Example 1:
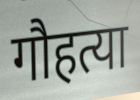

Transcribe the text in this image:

गौहत्या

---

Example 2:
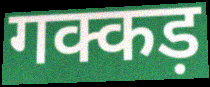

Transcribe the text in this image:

गक्कड़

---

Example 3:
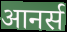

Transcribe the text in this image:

आनर्स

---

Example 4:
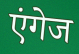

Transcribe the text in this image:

एंगेज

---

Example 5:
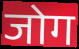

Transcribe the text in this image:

जोग